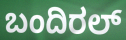
ಬಂದಿರಲ್